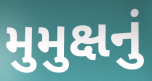
મુમુક્ષનું